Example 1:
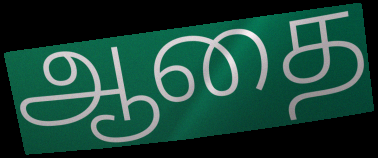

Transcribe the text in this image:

ஆதை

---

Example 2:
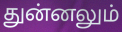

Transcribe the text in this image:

துன்னலும்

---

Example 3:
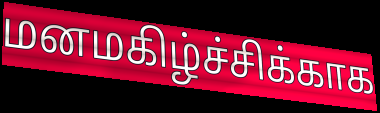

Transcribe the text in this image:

மனமகிழ்ச்சிக்காக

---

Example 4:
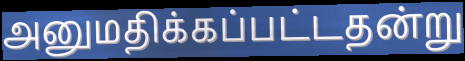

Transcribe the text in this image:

அனுமதிக்கப்பட்டதன்று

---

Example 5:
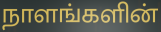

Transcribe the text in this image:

நாளங்களின்